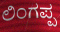
ಲಿಂಗಪ್ಪ